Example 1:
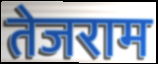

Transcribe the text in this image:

तेजराम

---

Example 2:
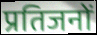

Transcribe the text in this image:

प्रतिजनों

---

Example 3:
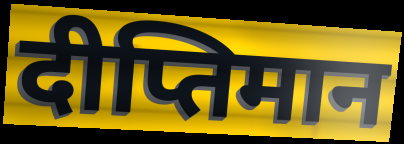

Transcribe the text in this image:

दीप्तिमान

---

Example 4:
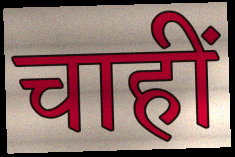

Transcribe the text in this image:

चाहीं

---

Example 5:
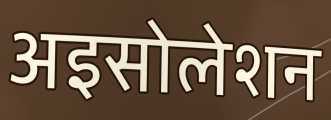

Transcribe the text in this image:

अइसोलेशन